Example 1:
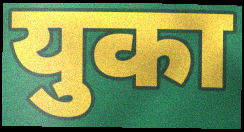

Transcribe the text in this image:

युका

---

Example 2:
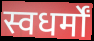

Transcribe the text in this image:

स्वधर्मों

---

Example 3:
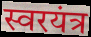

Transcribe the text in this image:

स्वरयंत्र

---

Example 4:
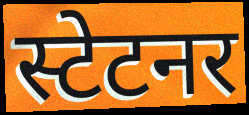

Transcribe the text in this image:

स्टेटनर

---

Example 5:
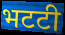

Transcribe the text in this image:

भटटी